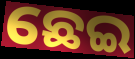
ଛେଇ